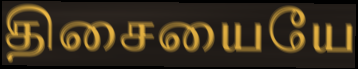
திசையையே